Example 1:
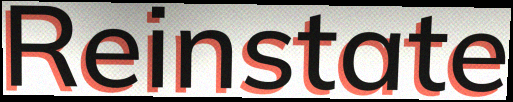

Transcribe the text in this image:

Reinstate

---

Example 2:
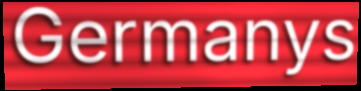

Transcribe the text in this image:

Germanys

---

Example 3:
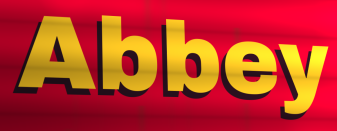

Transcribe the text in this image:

Abbey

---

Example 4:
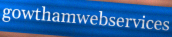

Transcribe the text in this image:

gowthamwebservices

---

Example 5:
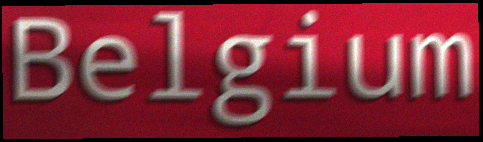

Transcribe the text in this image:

Belgium